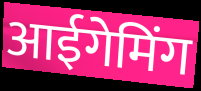
आईगेमिंग